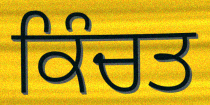
ਕਿੰਚਤ